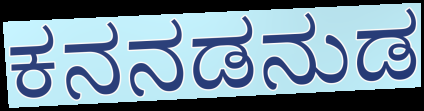
ಕನನಡನುಡ